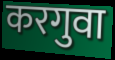
करगुवा